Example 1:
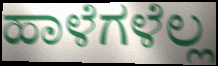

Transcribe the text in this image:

ಹಾಳೆಗಳೆಲ್ಲ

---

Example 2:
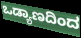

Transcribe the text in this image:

ಒಡ್ಯಾಣದಿಂದ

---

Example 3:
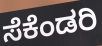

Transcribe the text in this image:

ಸೆಕೆಂಡರಿ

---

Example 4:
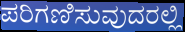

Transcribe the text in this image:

ಪರಿಗಣಿಸುವುದರಲ್ಲಿ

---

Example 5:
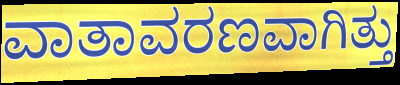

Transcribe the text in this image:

ವಾತಾವರಣವಾಗಿತ್ತು